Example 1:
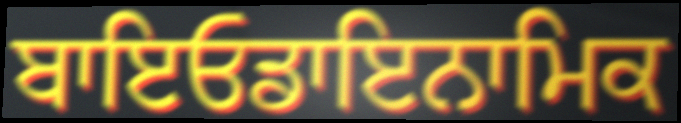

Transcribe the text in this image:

ਬਾਇਓਡਾਇਨਾਮਿਕ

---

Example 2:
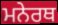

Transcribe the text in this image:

ਮਨੇਰਥ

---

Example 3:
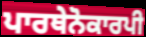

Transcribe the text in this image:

ਪਾਰਥੇਨੋਕਾਰਪੀ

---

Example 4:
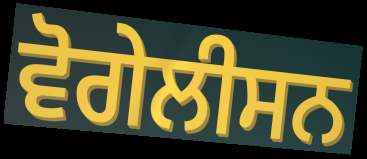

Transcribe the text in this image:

ਵੋਗੇਲੀਸਨ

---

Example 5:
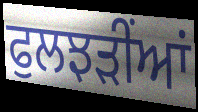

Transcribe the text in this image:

ਫੁਲਝੜੀਂਆਂ